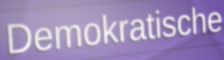
Demokratische